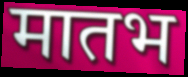
मातभ